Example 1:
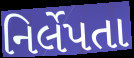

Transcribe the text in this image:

નિર્લેપતા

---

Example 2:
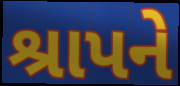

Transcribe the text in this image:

શ્રાપને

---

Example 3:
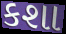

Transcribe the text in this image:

કશા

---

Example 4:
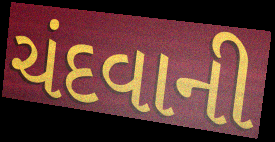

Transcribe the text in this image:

ચંદવાની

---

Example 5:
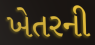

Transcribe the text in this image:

ખેતરની